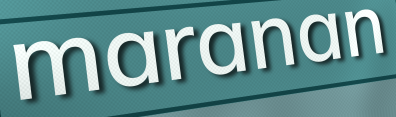
maranan